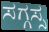
ಸಗ್ಗಸ್ಸ